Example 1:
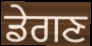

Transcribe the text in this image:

ਡੇਗਣ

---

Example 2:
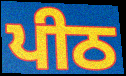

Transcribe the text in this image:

ਪੀਠ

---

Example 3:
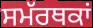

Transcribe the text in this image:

ਸਮੱਰਥਕਾਂ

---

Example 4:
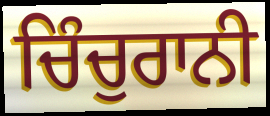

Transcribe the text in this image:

ਚਿੰਚੁਰਾਨੀ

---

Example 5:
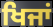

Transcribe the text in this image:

ਖਿਜਾਂ